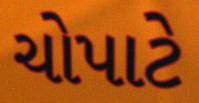
ચોપાટે